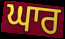
ਘਾਰ